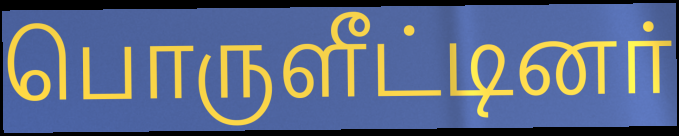
பொருளீட்டினர்